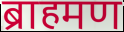
ब्राहमण